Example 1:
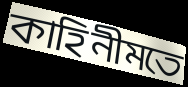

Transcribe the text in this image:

কাহিনীমতে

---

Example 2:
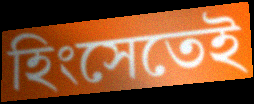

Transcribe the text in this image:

হিংসেতেই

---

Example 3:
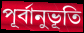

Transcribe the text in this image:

পূর্বানুভূতি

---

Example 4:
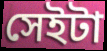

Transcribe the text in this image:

সেইটা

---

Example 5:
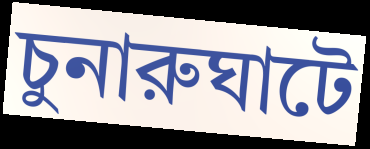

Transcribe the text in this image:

চুনারুঘাটে